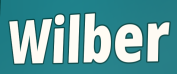
Wilber